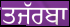
ਤਜੱਰਬਾ